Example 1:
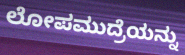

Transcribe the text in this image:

ಲೋಪಮುದ್ರೆಯನ್ನು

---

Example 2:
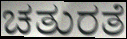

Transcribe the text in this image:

ಚತುರತೆ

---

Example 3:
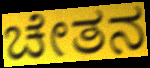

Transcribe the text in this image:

ಚೇತನ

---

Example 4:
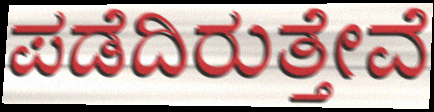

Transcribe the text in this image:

ಪಡೆದಿರುತ್ತೇವೆ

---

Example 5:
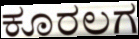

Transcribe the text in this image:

ಕೂರಲಗ